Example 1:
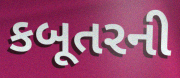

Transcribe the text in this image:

કબૂતરની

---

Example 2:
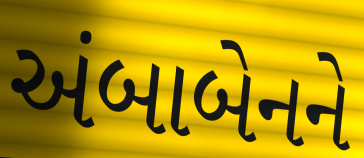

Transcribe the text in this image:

અંબાબેનને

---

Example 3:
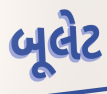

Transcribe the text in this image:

બૂલેટ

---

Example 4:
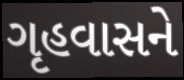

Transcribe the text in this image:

ગૃહવાસને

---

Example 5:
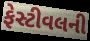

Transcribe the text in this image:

ફેસ્ટીવલની